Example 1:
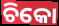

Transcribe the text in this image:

ଚିକୋ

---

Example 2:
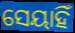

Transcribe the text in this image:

ସେୟାହିଁ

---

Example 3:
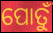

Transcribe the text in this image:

ପୋତୁଁ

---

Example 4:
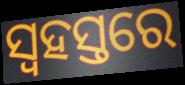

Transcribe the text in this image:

ସ୍ୱହସ୍ତରେ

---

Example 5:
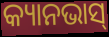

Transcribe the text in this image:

କ୍ୟାନଭାସ୍